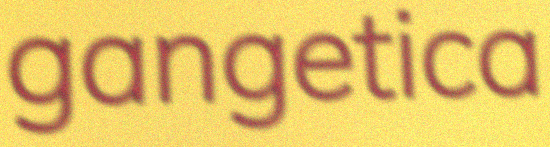
gangetica